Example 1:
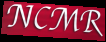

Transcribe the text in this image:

NCMR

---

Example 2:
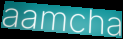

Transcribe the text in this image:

aamcha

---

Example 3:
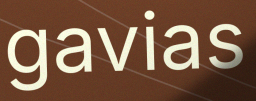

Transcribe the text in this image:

gavias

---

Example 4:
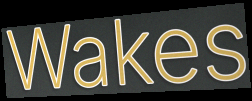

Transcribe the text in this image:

Wakes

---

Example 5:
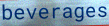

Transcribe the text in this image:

beverages